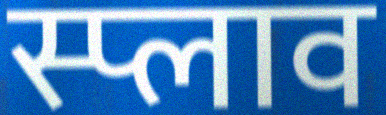
स्प्लाव